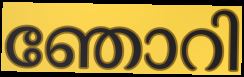
ഞോറി